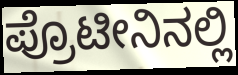
ಪ್ರೊಟೀನಿನಲ್ಲಿ